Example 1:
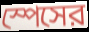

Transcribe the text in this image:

স্পেসের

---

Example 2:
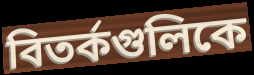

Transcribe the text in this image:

বিতর্কগুলিকে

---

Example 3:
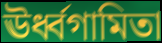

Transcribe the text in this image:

ঊর্ধ্বগামিতা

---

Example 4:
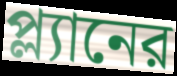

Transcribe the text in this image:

প্ল্যানের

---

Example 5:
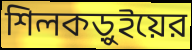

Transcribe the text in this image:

শিলকড়ুইয়ের